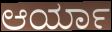
ಆರ್ಯಾ